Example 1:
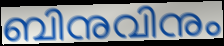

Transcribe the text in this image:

ബിനുവിനും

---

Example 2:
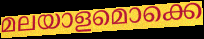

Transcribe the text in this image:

മലയാളമൊക്കെ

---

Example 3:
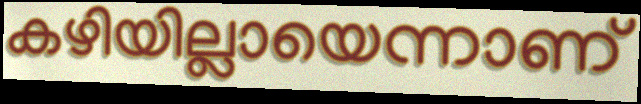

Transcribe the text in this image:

കഴിയില്ലായെന്നാണ്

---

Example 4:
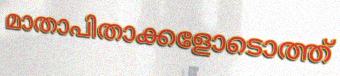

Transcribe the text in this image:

മാതാപിതാക്കളോടൊത്ത്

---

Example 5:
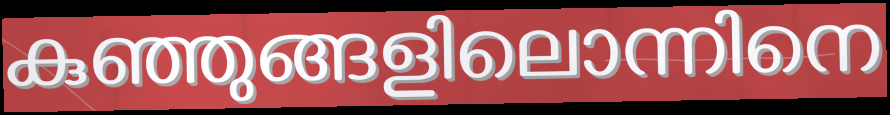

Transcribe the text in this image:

കുഞ്ഞുങ്ങളിലൊന്നിനെ